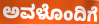
ಅವಳೊಂದಿಗೆ